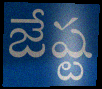
జేష్ట